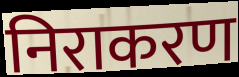
निराकरण